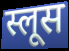
स्लूस